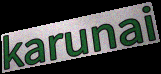
karunai